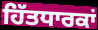
ਹਿੱਤਧਾਰਕਾਂ